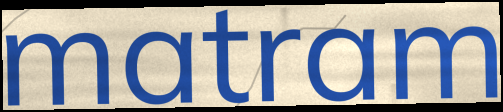
matram